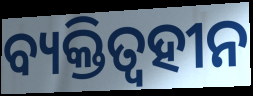
ବ୍ୟକ୍ତିତ୍ୱହୀନ